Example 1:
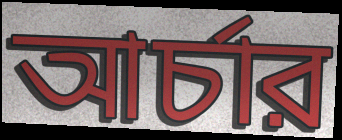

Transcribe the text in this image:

আর্চার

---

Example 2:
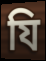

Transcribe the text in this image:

যি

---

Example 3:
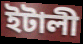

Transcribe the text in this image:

ইটালী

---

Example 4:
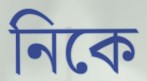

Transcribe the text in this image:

নিকে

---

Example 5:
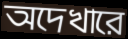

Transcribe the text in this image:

অদেখারে